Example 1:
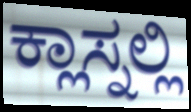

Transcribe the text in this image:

ಕ್ಲಾಸ್ನಲ್ಲಿ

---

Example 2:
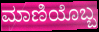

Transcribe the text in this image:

ಮಾಣಿಯೊಬ್ಬ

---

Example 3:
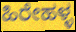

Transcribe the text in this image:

ಹಿರೇಹಳ್ಳ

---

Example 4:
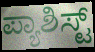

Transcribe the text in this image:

ಪ್ಯಾಶಿಸ್ಟ್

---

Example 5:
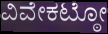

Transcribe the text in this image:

ವಿವೇಕಟ್ಠೋ